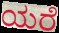
ಯರೆ